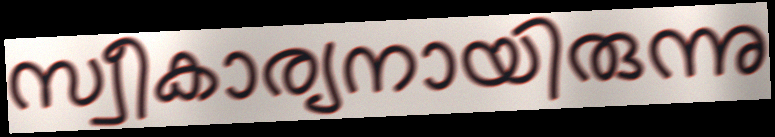
സ്വീകാര്യനായിരുന്നു